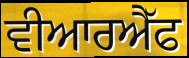
ਵੀਆਰਐੱਫ